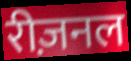
रीज़नल